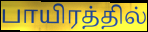
பாயிரத்தில்